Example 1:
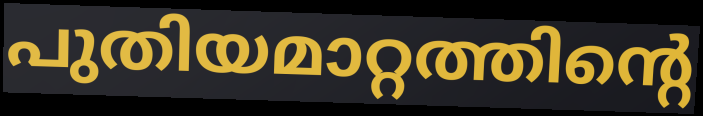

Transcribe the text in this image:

പുതിയമാറ്റത്തിന്റെ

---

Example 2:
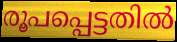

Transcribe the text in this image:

രൂപപ്പെട്ടതിൽ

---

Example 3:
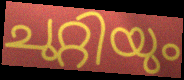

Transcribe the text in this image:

ചുറ്റിയും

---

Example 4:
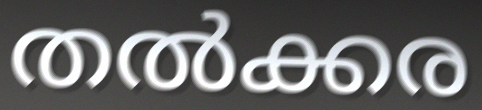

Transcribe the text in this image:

തൽക്കര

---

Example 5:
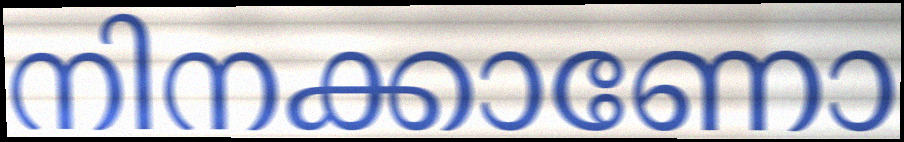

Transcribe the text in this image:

നിനക്കാണോ